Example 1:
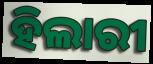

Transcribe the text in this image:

ହିଲାରୀ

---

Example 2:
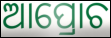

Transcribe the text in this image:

ଆପ୍ରୋଚ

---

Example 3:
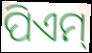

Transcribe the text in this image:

ପିଏମ୍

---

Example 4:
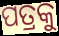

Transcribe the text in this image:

ପତ୍ରକୁ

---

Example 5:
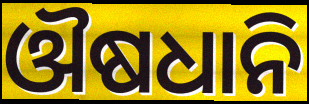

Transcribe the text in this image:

ଔଷଧାନି